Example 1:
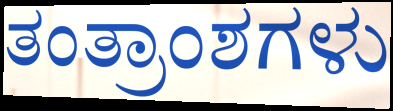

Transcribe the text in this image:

ತಂತ್ರಾಂಶಗಳು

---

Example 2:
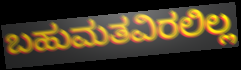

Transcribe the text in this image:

ಬಹುಮತವಿರಲಿಲ್ಲ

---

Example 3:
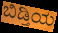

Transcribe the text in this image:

ಬಿಡ್ತಿಯ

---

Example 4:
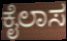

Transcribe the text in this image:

ಕೈಲಾಸ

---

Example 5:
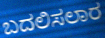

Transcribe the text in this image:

ಬದಲಿಸಲಾರ